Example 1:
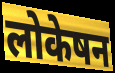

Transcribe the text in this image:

लोकेषन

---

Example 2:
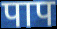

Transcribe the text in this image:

पाप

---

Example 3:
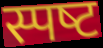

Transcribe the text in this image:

स्‍पष्‍ट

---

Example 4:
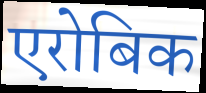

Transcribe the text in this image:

एरोबिक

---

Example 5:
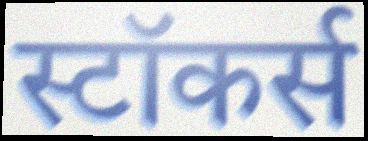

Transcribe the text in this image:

स्टॉकर्स